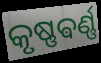
କୃଷ୍ଣଵର୍ଣ୍ଣ